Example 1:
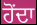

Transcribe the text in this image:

ਹੋਂਦਾ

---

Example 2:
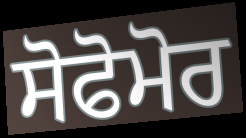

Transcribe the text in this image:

ਸੋਫੋਮੋਰ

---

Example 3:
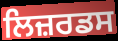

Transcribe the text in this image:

ਲਿਜ਼ਰਡਸ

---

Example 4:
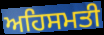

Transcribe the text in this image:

ਅਹਿਸਮਤੀ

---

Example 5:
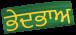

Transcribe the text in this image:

ਭੇਦਭਾਅ